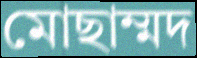
মোছাম্মদ